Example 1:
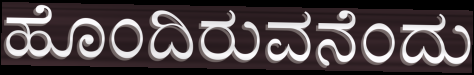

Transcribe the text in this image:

ಹೊಂದಿರುವನೆಂದು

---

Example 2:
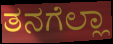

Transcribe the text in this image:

ತನಗೆಲ್ಲಾ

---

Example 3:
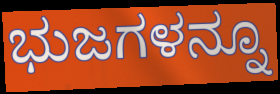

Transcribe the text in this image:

ಭುಜಗಳನ್ನೂ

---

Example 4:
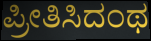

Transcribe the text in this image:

ಪ್ರೀತಿಸಿದಂಥ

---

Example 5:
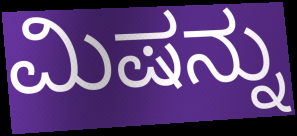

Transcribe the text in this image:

ಮಿಷನ್ನು